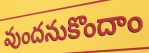
వుందనుకొందాం